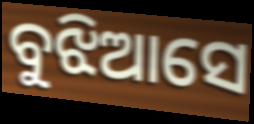
ବୁଝିଆସେ